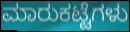
ಮಾರುಕಟ್ಟೆಗಳು